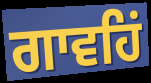
ਗਾਵਹਿਂ